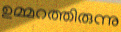
ഉമ്മറത്തിരുന്നു